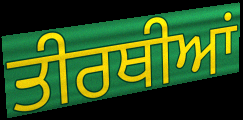
ਤੀਰਥੀਆਂ